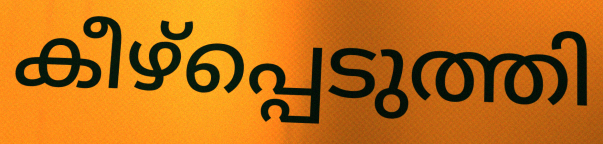
കീഴ്പ്പെടുത്തി